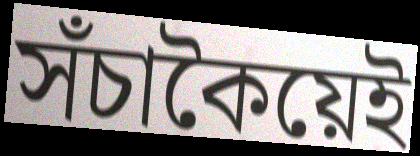
সঁচাকৈয়েই